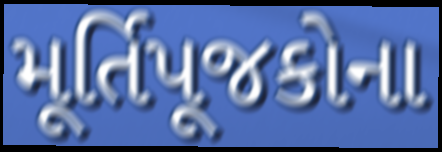
મૂર્તિપૂજકોના